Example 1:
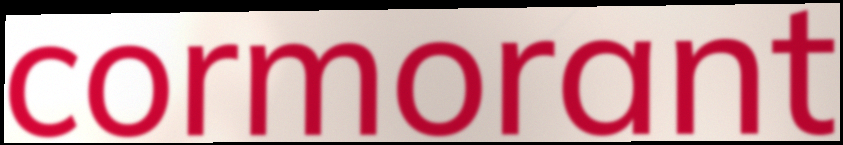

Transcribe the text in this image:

cormorant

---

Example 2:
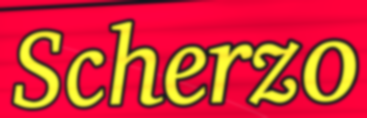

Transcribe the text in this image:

Scherzo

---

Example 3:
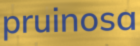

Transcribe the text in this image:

pruinosa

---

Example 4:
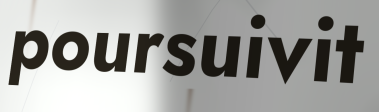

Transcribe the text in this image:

poursuivit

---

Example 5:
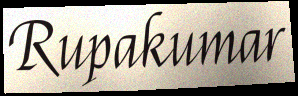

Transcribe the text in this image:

Rupakumar